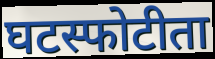
घटस्फोटीता